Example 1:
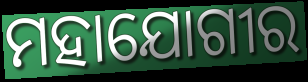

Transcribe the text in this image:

ମହାଯୋଗୀର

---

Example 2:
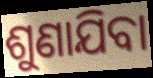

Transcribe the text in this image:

ଶୁଣାଯିବା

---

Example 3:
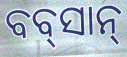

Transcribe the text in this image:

ବବ୍‌ସାନ୍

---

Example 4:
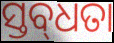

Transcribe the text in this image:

ସ୍ତବ୍‍ଧତା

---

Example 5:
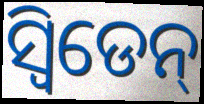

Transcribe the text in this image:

ସ୍ଵିଡେନ୍